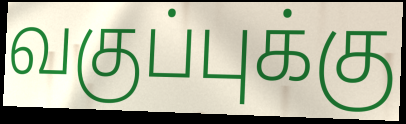
வகுப்புக்கு